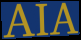
AIA